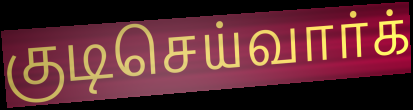
குடிசெய்வார்க்